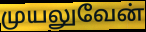
முயலுவேன்